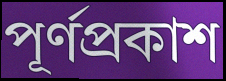
পূর্ণপ্রকাশ